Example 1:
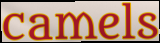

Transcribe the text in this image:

camels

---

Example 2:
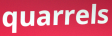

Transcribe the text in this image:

quarrels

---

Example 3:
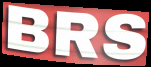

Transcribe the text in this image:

BRS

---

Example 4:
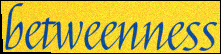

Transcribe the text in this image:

betweenness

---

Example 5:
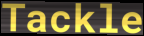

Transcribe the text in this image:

Tackle